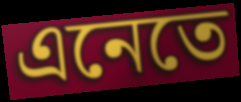
এনেতে